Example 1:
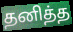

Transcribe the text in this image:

தனித்த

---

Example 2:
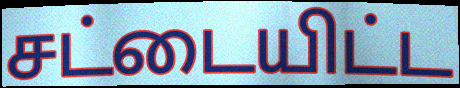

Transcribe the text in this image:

சட்டையிட்ட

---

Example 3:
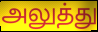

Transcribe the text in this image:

அலுத்து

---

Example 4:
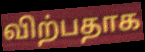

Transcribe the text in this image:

விற்பதாக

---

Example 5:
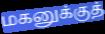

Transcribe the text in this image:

மகனுக்குத்